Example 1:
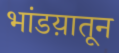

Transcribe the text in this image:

भांडय़ातून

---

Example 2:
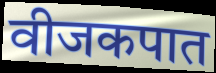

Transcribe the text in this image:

वीजकपात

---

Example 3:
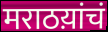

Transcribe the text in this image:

मराठय़ांचं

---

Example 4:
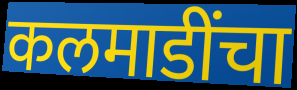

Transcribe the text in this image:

कलमाडींचा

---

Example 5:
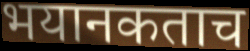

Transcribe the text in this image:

भयानकताच